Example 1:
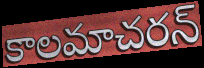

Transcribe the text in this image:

కాలమాచరన్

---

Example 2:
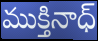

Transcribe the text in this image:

ముక్తినాధ్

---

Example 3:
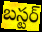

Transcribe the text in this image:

బస్టర్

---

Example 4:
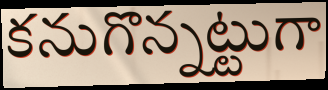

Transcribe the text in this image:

కనుగొన్నట్టుగా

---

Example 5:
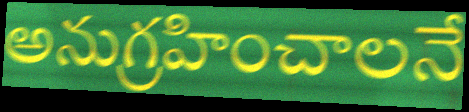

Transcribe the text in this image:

అనుగ్రహించాలనే